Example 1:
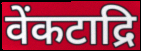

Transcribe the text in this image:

वेंकटाद्रि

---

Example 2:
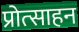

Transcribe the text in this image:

प्रोत्‍साहन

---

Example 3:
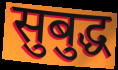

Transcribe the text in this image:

सुबुद्ध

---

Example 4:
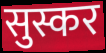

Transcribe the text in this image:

सुस्कर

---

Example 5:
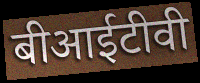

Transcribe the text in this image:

बीआईटीवी